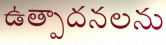
ఉత్పాదనలను